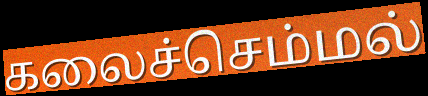
கலைச்செம்மல்